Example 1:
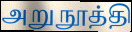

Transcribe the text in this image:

அறுநூத்தி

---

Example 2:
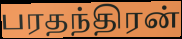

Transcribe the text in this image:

பரதந்திரன்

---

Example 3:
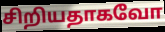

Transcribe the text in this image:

சிறியதாகவோ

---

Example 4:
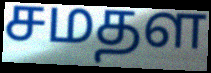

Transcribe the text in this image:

சமதள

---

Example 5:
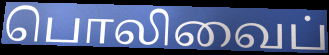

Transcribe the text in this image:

பொலிவைப்